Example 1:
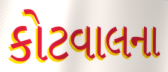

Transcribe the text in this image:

કોટવાલના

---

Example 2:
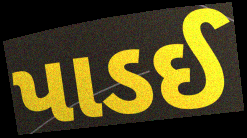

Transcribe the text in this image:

પાડઈ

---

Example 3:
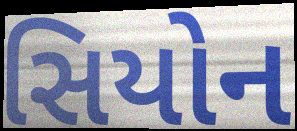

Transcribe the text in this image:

સિયોન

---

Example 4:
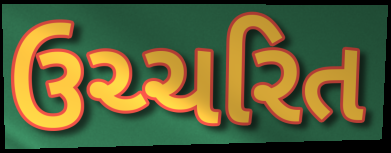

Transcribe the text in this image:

ઉચ્ચરિત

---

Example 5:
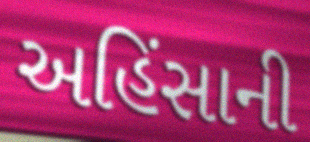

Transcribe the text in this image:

અહિંસાની